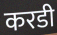
करडी